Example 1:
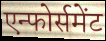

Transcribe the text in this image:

एन्फोर्समेंट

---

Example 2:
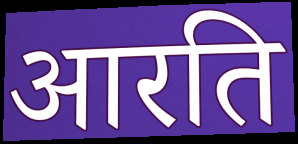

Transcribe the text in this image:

आरति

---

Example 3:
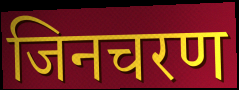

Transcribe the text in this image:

जिनचरण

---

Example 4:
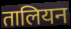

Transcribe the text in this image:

तालियन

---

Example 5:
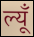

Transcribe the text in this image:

ल्यूँ